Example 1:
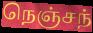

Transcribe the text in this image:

நெஞ்சந்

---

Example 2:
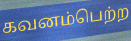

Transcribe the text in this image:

கவனம்பெற்ற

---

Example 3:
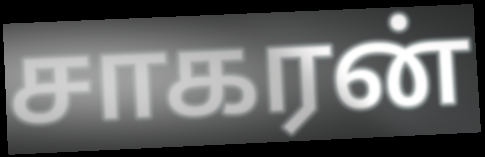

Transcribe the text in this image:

சாகரன்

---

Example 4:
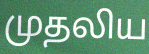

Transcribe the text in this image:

முதலிய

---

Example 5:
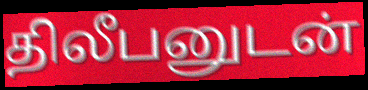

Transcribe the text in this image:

திலீபனுடன்